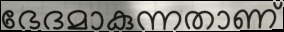
ഭേദമാകുന്നതാണ്